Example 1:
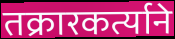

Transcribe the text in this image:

तक्रारकर्त्याने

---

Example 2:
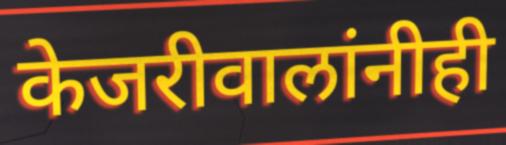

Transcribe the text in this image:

केजरीवालांनीही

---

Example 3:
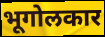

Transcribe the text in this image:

भूगोलकार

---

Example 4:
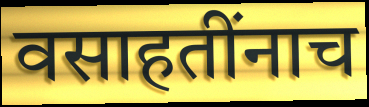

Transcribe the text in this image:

वसाहतींनाच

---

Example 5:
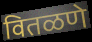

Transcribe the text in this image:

वितळणे